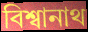
বিশ্বানাথ